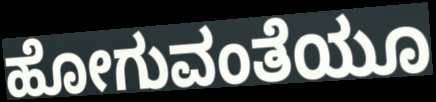
ಹೋಗುವಂತೆಯೂ